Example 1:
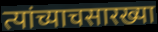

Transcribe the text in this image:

त्यांच्याचसारख्या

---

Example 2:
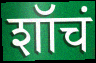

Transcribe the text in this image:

शॉचं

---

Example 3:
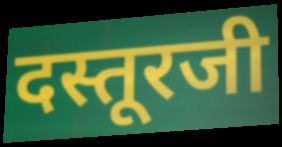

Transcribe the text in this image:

दस्तूरजी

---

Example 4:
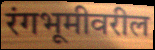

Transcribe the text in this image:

रंगभूमीवरील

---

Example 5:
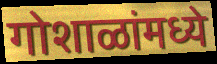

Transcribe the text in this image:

गोशाळांमध्ये